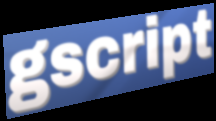
gscript